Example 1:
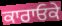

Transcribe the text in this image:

ਕਾਰਾਓਕੇ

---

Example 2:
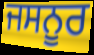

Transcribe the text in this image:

ਜਸਨੂਰ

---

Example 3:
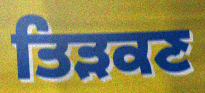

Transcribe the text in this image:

ਤਿੜਕਣ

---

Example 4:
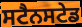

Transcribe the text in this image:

ਸਟੈਨਸਟੇਡ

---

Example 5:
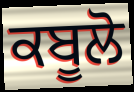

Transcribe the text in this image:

ਕਬੂਲੋ